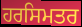
ਹਰਸਿਮਤਰ